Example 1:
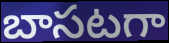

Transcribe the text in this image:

బాసటగా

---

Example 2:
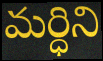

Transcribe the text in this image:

మర్ధిని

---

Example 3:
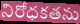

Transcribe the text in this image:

నిరోధకతను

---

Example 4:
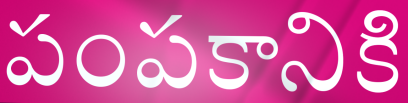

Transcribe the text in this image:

పంపకానికి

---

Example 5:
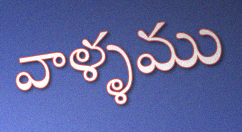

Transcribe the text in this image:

వాళ్ళము